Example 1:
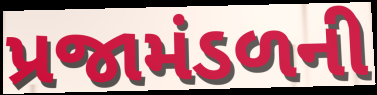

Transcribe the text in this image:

પ્રજામંડળની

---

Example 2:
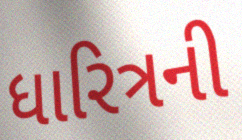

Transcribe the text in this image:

ધારિત્રની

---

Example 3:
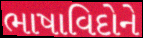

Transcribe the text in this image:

ભાષાવિદોને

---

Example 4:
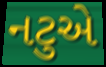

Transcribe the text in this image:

નટુએ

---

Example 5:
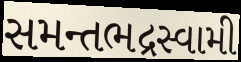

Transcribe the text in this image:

સમન્તભદ્રસ્વામી